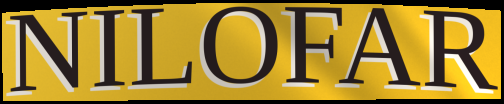
NILOFAR